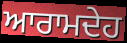
ਆਰਾਮਦੇਹ